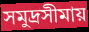
সমুদ্রসীমায়